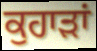
ਕੁਹਾੜਾਂ